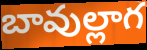
బావుల్లాగ